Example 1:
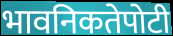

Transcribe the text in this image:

भावनिकतेपोटी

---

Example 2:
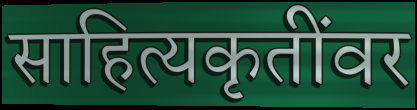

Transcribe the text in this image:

साहित्यकृतींवर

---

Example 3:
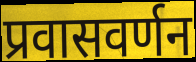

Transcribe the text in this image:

प्रवासवर्णन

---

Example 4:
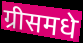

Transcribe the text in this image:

ग्रीसमधे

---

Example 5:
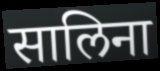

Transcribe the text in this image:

सालिना